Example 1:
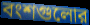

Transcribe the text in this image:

বংশগুলোর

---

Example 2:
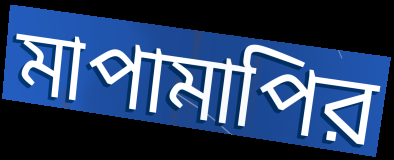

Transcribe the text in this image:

মাপামাপির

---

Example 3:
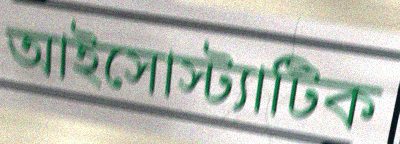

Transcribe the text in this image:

আইসোস্ট্যাটিক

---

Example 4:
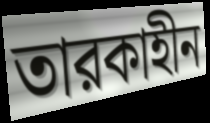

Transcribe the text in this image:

তারকাহীন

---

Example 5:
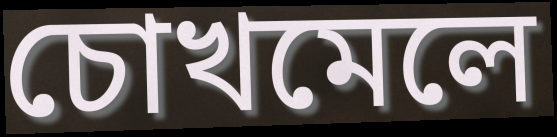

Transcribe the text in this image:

চোখমেলে